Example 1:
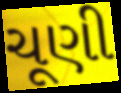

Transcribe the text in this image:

ચૂણી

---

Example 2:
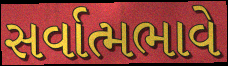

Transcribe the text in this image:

સર્વાત્મભાવે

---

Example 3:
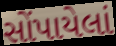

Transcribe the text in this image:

સોંપાયેલાં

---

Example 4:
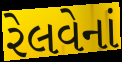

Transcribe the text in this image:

રેલવેનાં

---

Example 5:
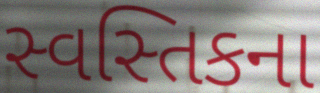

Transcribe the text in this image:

સ્વસ્તિકના